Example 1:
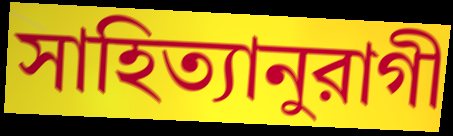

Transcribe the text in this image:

সাহিত্যানুরাগী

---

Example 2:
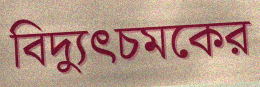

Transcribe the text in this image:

বিদ্যুৎচমকের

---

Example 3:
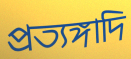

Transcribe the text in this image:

প্রত্যঙ্গাদি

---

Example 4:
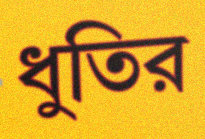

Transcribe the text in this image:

ধুতির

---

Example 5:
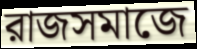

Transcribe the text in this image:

রাজসমাজে